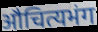
औचित्यभंग